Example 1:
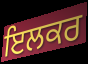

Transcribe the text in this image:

ਇਲਕਰ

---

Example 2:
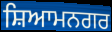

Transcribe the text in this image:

ਸ਼ਿਆਮਨਗਰ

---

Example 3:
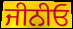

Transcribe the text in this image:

ਜੀਨੀਓ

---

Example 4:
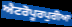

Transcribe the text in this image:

ਐਟਰੋਪੂਰਪੁਰੀਆ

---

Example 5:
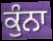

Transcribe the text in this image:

ਕੁੰਨਾ